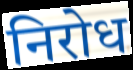
निरोध